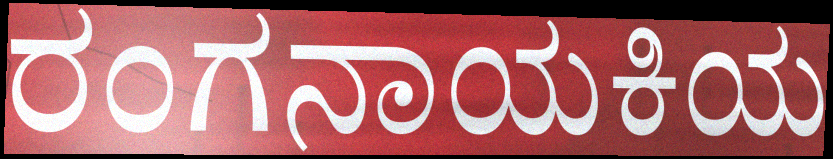
ರಂಗನಾಯಕಿಯ